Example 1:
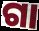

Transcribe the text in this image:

ଗା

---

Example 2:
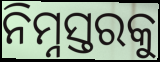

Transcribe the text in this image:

ନିମ୍ନସ୍ତରକୁ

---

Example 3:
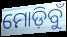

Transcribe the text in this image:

ମୋଡ଼ିବୁଁ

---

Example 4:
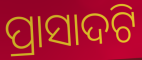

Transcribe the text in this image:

ପ୍ରାସାଦଟି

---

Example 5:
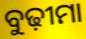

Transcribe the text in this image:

ବୁଢ଼ୀମା